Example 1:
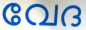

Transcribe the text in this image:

വേദ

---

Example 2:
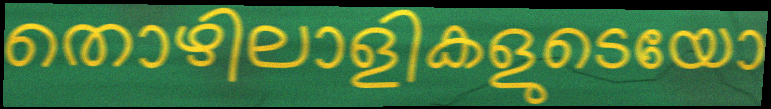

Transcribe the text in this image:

തൊഴിലാളികളുടെയോ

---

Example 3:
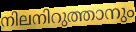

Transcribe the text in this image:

നിലനിറുത്താനും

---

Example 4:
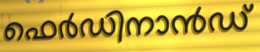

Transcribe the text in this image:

ഫെർഡിനാൻഡ്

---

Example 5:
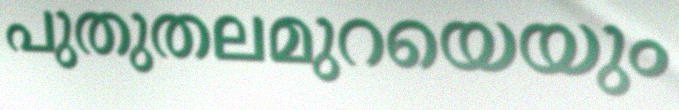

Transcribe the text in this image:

പുതുതലമുറയെയും